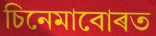
চিনেমাবোৰত